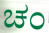
ಚಂ